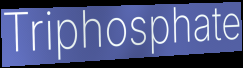
Triphosphate